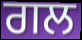
ਗਲ